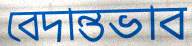
বেদান্তভাব